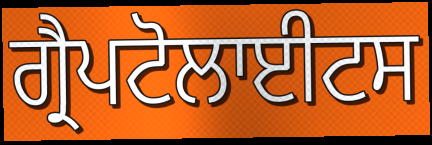
ਗ੍ਰੈਪਟੋਲਾਈਟਸ